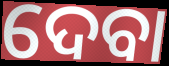
ଦେବା